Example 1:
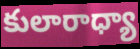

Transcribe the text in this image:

కులారాధ్యా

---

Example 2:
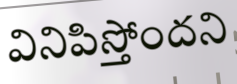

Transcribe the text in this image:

వినిపిస్తోందని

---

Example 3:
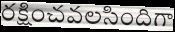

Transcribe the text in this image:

రక్షించవలసిందిగా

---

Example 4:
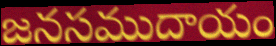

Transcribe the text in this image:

జనసముదాయం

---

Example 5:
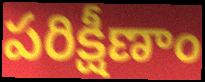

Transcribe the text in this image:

పరిక్షీణాం